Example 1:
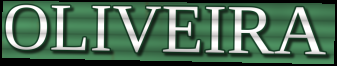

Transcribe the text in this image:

OLIVEIRA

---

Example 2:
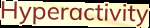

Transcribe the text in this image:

Hyperactivity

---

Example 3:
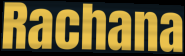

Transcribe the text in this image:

Rachana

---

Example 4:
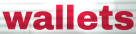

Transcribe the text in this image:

wallets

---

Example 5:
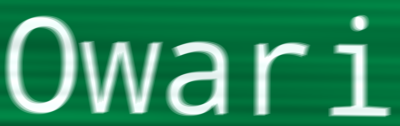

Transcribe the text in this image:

Owari